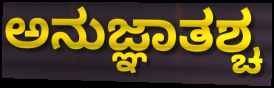
ಅನುಜ್ಞಾತಶ್ಚ